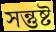
সন্তুষ্ট